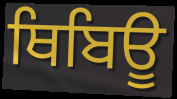
ਥਿਬਿਊ